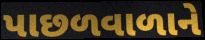
પાછળવાળાને